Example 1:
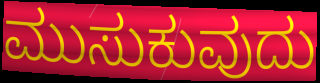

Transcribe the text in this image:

ಮುಸುಕುವುದು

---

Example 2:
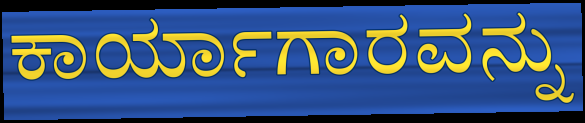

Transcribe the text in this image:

ಕಾರ್ಯಾಗಾರವನ್ನು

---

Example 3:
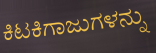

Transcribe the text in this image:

ಕಿಟಕಿಗಾಜುಗಳನ್ನು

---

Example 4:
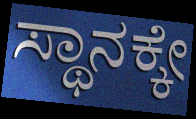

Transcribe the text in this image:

ಸ್ಥಾನಕ್ಕೇ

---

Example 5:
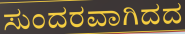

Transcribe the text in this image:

ಸುಂದರವಾಗಿದದ